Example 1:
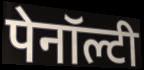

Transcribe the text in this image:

पेनॉल्टी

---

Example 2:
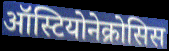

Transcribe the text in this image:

ऑस्टियोनेक्रोसिस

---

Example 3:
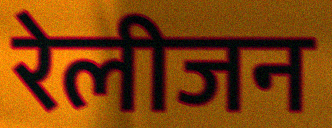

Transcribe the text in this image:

रेलीजन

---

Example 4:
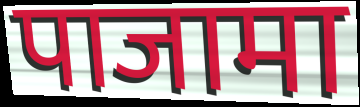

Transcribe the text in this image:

पाजामा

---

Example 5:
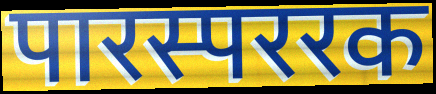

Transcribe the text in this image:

पारस्पररक